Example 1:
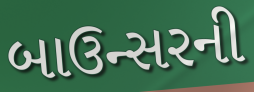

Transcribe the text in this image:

બાઉન્સરની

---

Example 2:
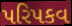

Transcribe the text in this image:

પરિપકવ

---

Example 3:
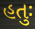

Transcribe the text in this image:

હતુઃ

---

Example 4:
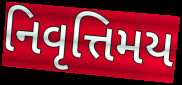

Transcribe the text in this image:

નિવૃત્તિમય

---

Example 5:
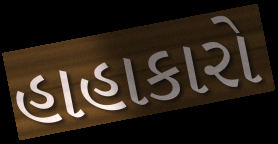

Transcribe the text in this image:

હાહાકારો